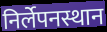
निर्लेपनस्थान